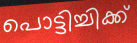
പൊട്ടിച്ചിക്ക്